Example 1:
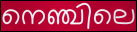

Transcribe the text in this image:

നെഞ്ചിലെ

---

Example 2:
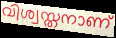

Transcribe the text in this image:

വിശ്വസ്തനാണ്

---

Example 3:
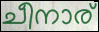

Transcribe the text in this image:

ചീനാര്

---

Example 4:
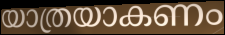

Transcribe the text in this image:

യാത്രയാകണം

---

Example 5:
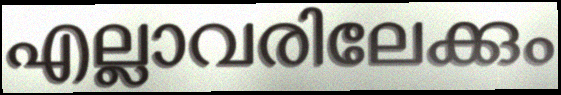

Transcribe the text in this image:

എല്ലാവരിലേക്കും